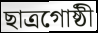
ছাত্রগোষ্ঠী